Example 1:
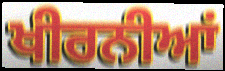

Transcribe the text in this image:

ਖੀਰਨੀਆਂ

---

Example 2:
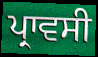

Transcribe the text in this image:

ਪ੍ਰਾਵਸੀ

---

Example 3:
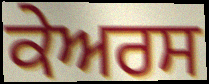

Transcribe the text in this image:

ਕੇਅਰਸ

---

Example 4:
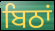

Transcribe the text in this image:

ਬਿਠਾਂ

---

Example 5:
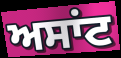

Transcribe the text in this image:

ਅਸਾਂਟ